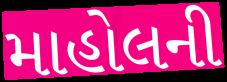
માહોલની